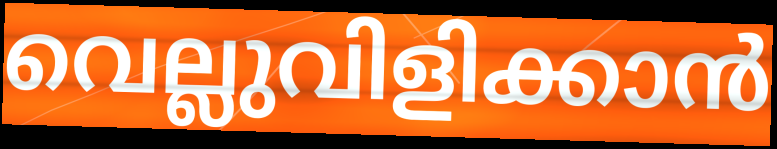
വെല്ലുവിളിക്കാൻ